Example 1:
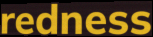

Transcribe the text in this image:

redness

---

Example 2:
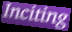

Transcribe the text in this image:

Inciting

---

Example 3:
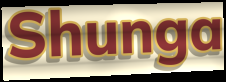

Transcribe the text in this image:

Shunga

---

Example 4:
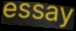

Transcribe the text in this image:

essay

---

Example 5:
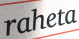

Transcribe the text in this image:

raheta